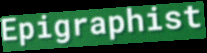
Epigraphist